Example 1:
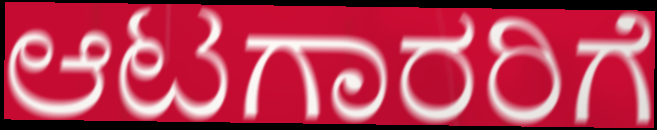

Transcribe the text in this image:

ಆಟಗಾರರಿಗೆ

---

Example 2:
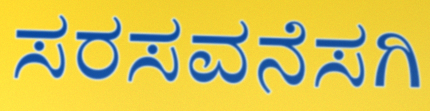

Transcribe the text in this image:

ಸರಸವನೆಸಗಿ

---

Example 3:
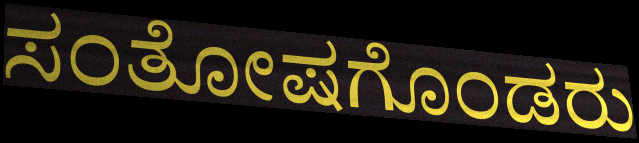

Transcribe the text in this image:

ಸಂತೋಷಗೊಂಡರು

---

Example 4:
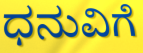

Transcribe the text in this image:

ಧನುವಿಗೆ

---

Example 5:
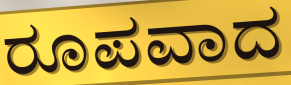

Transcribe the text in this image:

ರೂಪವಾದ